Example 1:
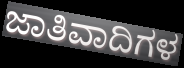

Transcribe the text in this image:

ಜಾತಿವಾದಿಗಳ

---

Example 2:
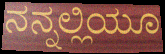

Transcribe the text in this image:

ನನ್ನಲ್ಲಿಯೂ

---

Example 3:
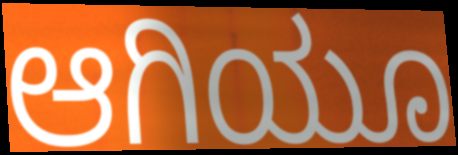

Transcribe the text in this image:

ಆಗಿಯೂ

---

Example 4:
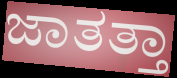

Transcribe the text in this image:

ಜಾತತ್ತಾ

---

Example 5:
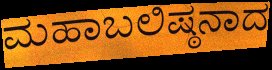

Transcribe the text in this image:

ಮಹಾಬಲಿಷ್ಠನಾದ